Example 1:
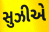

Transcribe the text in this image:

સુઝીએ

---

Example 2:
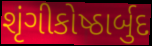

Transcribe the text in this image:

શૃંગીકોષ્ઠાર્બુદ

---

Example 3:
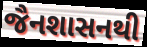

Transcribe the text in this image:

જૈનશાસનથી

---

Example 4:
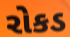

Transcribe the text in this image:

રોકડ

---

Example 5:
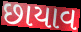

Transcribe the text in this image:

છાયાવ